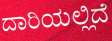
ದಾರಿಯಲ್ಲಿದೆ